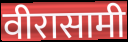
वीरासामी